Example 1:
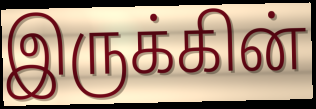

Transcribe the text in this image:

இருக்கின்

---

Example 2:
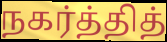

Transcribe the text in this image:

நகர்த்தித்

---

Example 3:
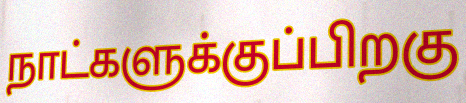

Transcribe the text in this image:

நாட்களுக்குப்பிறகு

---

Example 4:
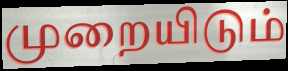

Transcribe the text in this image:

முறையிடும்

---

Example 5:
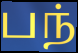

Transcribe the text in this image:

பந்